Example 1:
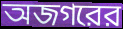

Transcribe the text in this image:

অজগরের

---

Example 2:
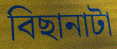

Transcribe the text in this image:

বিছানাটা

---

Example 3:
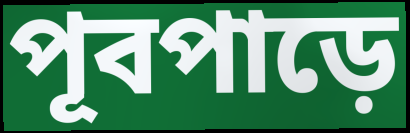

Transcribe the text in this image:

পূবপাড়ে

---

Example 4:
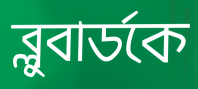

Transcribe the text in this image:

ব্লুবার্ডকে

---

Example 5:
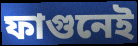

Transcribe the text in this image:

ফাগুনেই